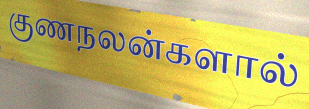
குணநலன்களால்